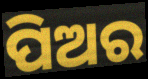
ପିଅର